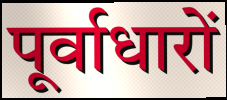
पूर्वाधारों